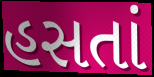
હસતાં